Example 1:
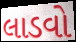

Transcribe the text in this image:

લાડવો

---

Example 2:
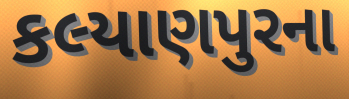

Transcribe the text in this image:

કલ્યાણપુરના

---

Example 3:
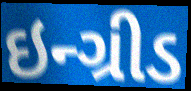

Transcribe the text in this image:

ઇન્ગ્રીડ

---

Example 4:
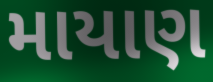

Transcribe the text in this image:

માયાણ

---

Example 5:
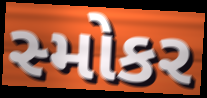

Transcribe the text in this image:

સ્મોકર